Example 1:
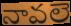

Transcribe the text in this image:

నావలె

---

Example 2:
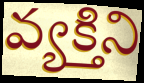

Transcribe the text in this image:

వ్యక్తిని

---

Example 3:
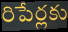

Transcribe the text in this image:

రిపేర్లకు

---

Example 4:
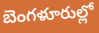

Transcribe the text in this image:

బెంగళూరుల్లో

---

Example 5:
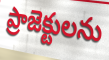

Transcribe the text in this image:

ప్రాజెక్టులను